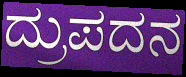
ದ್ರುಪದನ